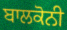
ਬਾਲਕੋਨੀ